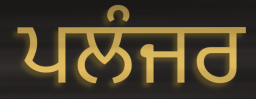
ਪਲੰਜਰ